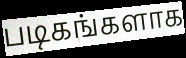
படிகங்களாக